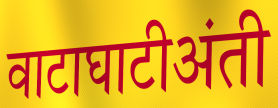
वाटाघाटीअंती